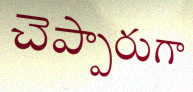
చెప్పారుగా